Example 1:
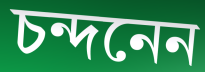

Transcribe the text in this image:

চন্দনেন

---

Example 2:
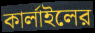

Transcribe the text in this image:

কার্লাইলের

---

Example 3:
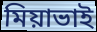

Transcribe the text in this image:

মিয়াভাই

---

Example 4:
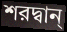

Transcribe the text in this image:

শরদ্বান্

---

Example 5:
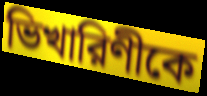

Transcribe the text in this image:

ভিখারিণীকে